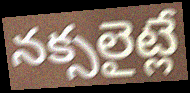
నక్సలైట్లే